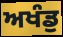
ਅਖੰਡੁ